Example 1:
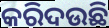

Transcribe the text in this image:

କରିଦଉଛି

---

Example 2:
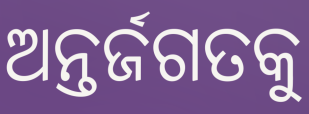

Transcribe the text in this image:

ଅନ୍ତର୍ଜଗତକୁ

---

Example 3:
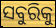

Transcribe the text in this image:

ସବୁରିକୁ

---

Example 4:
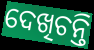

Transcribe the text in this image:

ଦେଖିଚନ୍ତି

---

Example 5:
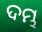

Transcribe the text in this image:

ଦମ୍ଭ